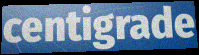
centigrade